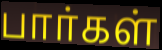
பார்கள்